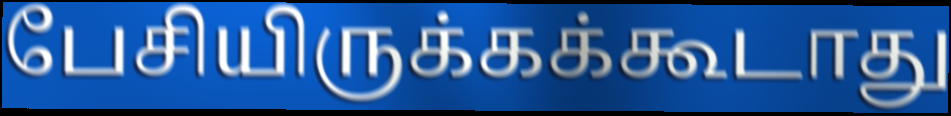
பேசியிருக்கக்கூடாது